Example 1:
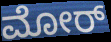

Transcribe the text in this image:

ಮೋರ್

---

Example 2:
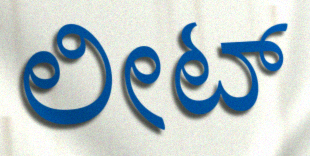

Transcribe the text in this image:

ಲೀಟ್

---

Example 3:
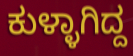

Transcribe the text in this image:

ಕುಳ್ಳಾಗಿದ್ದ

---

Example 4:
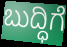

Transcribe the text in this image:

ಬುದ್ಧಿಗೆ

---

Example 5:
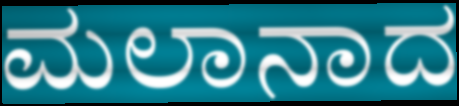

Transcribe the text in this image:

ಮಲಾನಾದ